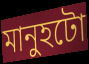
মানুহটো